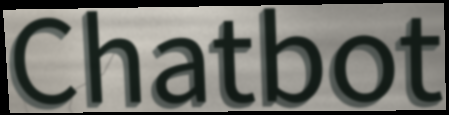
Chatbot